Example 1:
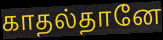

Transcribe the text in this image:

காதல்தானே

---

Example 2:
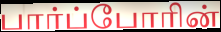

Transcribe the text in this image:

பார்ப்போரின்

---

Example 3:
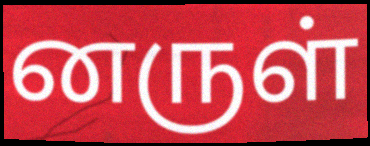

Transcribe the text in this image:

னருள்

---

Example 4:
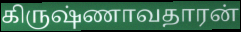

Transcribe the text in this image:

கிருஷ்ணாவதாரன்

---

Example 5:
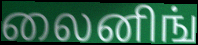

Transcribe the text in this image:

லைனிங்